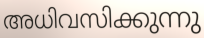
അധിവസിക്കുന്നു